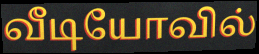
வீடியோவில்